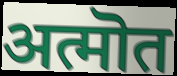
अत्मॊत